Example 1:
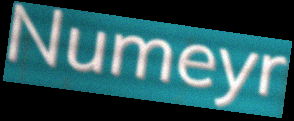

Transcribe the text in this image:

Numeyr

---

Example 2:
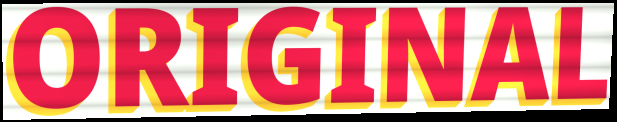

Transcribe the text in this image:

ORIGINAL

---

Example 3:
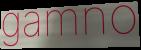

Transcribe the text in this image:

gamno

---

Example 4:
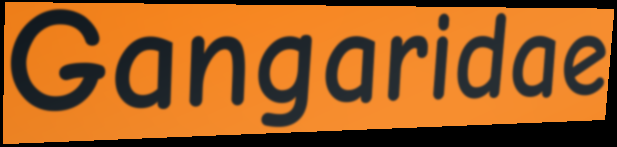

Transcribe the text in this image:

Gangaridae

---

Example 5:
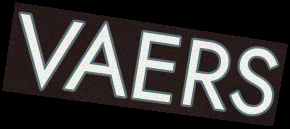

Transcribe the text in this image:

VAERS